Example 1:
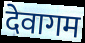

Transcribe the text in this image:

देवागम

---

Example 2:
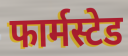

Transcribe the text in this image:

फार्मस्टेड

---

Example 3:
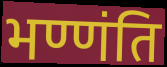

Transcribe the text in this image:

भण्णंति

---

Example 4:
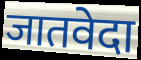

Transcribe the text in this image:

जातवेदा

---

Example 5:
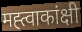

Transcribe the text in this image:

मह्त्वाकांक्षी